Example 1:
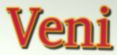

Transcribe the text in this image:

Veni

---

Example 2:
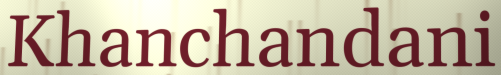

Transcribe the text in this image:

Khanchandani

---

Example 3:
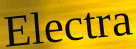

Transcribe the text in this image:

Electra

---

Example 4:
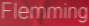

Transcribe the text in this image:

Flemming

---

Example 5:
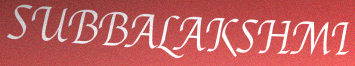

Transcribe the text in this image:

SUBBALAKSHMI